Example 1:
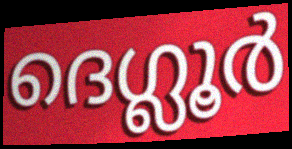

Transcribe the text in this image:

ദെഗ്ലൂർ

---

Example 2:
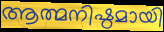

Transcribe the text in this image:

ആത്മനിഷ്ഠമായി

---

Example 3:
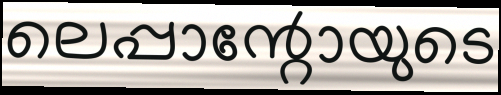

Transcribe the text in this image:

ലെപ്പാന്റോയുടെ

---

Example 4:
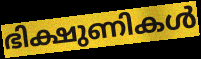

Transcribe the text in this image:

ഭിക്ഷുണികൾ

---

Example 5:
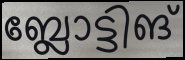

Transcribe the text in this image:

ബ്ലോട്ടിങ്